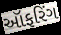
ઑફરિંગ